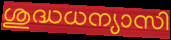
ശുദ്ധധന്യാസി